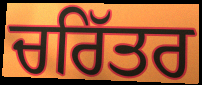
ਚਰਿੱਤਰ